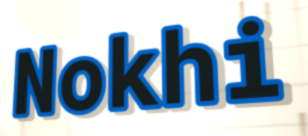
Nokhi